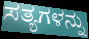
ಸತ್ಯಗಳನ್ನು